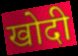
खोदी